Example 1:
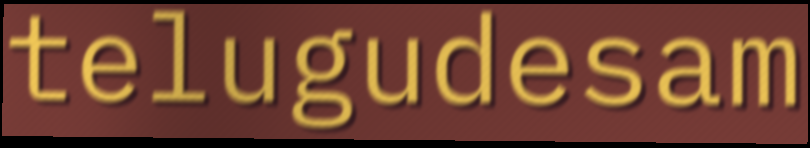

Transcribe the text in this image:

telugudesam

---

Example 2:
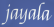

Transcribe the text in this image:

jayala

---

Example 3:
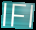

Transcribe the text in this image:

IFI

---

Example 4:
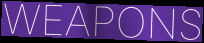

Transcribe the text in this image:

WEAPONS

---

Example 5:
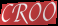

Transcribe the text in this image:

CROO